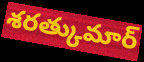
శరత్కుమార్